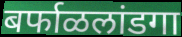
बर्फाळलांडगा